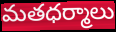
మతధర్మాలు